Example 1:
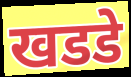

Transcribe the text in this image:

खडडे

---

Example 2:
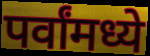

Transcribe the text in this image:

पर्वांमध्ये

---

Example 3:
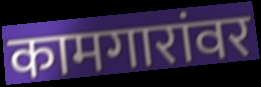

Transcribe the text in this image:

कामगारांवर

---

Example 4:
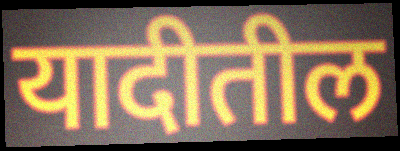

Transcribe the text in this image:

यादीतील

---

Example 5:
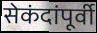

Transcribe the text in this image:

सेकंदांपूर्वी